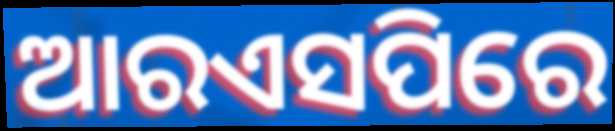
ଆରଏସପିରେ